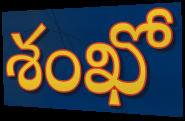
శంఖో